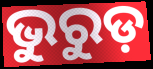
ଭୁରୁଡ଼